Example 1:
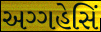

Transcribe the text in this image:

અગ્ગહેસિં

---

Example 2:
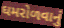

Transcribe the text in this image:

ઘમરોળવાનું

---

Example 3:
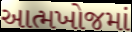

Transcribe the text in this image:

આત્મખોજમાં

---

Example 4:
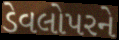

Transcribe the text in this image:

ડેવલોપરને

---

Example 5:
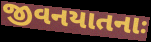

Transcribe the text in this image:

જીવનયાતનાઃ